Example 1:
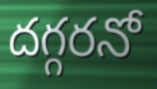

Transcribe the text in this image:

దగ్గరనో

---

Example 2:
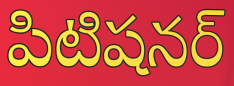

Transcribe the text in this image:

పిటిషనర్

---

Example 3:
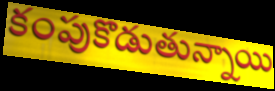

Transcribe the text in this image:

కంపుకొడుతున్నాయి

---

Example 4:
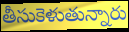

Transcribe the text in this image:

తీసుకెళుతున్నారు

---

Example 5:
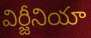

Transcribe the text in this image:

విర్జీనియా